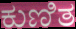
ಕುಣಿತ